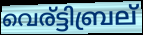
വെര്ട്ടിബ്രല്